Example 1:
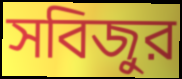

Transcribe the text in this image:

সবিজুর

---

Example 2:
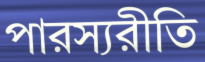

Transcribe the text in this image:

পারস্যরীতি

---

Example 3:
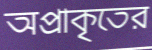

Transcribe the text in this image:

অপ্রাকৃতের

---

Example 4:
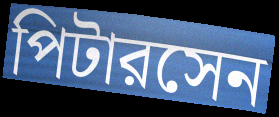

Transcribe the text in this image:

পিটারসেন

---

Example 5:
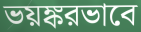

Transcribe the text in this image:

ভয়ঙ্করভাবে